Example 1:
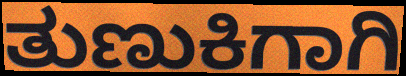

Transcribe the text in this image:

ತುಣುಕಿಗಾಗಿ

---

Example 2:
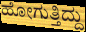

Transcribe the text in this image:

ಹೋಗುತ್ತಿದ್ದು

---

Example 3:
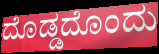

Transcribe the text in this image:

ದೊಡ್ಡದೊಂದು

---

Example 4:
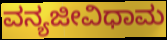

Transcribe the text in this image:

ವನ್ಯಜೀವಿಧಾಮ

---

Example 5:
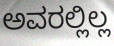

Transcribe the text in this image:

ಅವರಲ್ಲಿಲ್ಲ